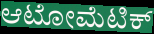
ಆಟೋಮೆಟಿಕ್